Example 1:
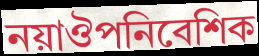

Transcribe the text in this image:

নয়াঔপনিবেশিক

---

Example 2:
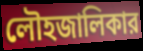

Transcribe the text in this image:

লৌহজালিকার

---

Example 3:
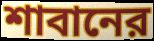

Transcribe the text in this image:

শাবানের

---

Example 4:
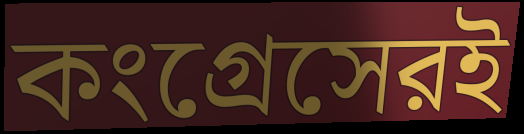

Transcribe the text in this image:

কংগ্রেসেরই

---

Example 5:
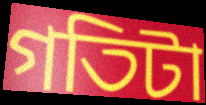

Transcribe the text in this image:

গতিটা